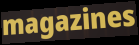
magazines